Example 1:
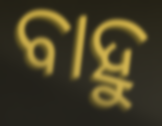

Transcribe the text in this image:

ବାହୁ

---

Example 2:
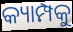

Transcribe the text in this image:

କ୍ୟାମ୍ପକୁ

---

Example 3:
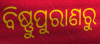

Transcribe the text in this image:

ବିଷ୍ଣୁପୁରାଣରୁ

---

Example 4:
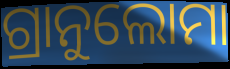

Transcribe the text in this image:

ଗ୍ରାନୁଲୋମା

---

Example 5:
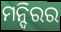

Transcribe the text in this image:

ମନ୍ଦିରର